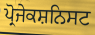
ਪ੍ਰੋਜੇਕਸ਼ਨਿਸਟ